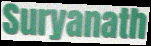
Suryanath